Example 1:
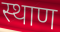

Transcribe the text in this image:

स्थाण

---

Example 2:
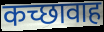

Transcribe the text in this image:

कच्छावाह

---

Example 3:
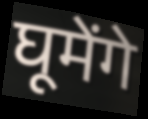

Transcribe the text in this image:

घूमेंगे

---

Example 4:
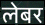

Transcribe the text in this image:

लेबर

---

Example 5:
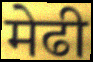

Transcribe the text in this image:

मेढी